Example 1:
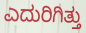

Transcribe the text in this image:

ಎದುರಿಗಿತ್ತು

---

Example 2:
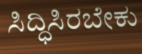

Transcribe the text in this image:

ಸಿದ್ಧಿಸಿರಬೇಕು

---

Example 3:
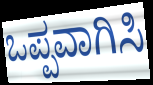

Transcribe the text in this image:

ಒಪ್ಪವಾಗಿಸಿ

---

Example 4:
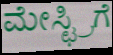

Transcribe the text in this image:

ಮೇಸ್ಟ್ರಿಗೆ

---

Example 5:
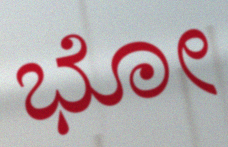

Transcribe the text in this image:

ಭೋ